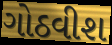
ગોઠવીશ